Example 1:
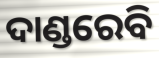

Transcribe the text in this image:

ଦାଣ୍ଡରେବି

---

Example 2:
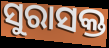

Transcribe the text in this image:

ସୁରାସକ୍ତ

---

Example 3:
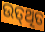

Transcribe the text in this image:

ଉତ୍‍ଥିତ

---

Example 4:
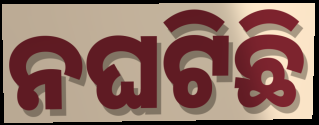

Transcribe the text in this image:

ନଘଟିଛି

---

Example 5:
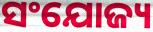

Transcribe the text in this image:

ସଂଯୋଜ୍ୟ